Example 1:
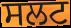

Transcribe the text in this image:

ਸਲਟ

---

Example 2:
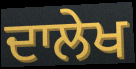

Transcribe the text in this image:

ਦਾਲੇਖ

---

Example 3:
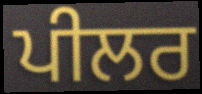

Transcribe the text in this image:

ਪੀਲਰ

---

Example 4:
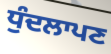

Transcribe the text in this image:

ਧੁੰਦਲਾਪਣ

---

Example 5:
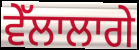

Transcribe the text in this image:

ਵੇੱਲਾਲਾਗੇ